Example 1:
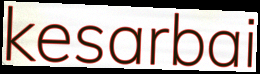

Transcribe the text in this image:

kesarbai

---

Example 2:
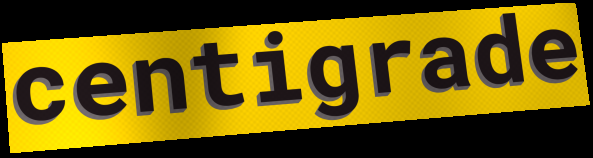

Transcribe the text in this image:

centigrade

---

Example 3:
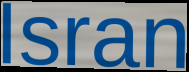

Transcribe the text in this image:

Isran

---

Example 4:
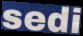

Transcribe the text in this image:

sedi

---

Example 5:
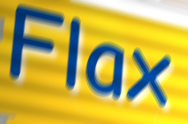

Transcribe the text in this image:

Flax